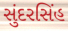
સુંદરસિંહ